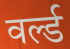
वर्ल्ड